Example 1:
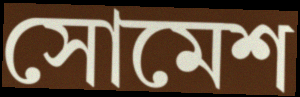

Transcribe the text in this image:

সোমেশ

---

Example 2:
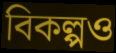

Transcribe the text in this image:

বিকল্পও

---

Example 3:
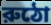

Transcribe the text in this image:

রুঠো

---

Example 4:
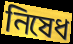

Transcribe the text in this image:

নিষেধ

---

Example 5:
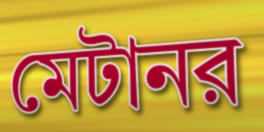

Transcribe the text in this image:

মেটানর